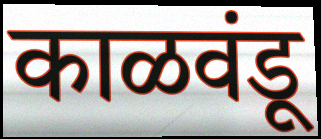
काळवंडू